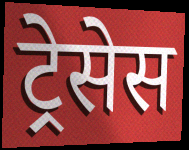
ट्रेसेस